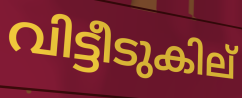
വിട്ടീടുകില്